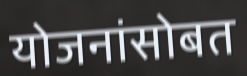
योजनांसोबत